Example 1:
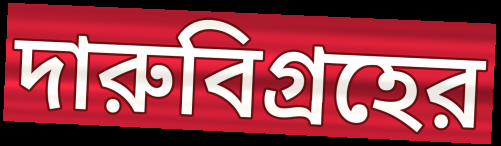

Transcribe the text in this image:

দারুবিগ্রহের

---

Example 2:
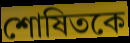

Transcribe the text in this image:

শোষিতকে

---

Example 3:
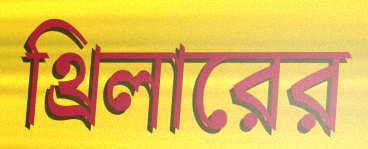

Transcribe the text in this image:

থ্রিলারের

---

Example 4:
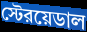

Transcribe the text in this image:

স্টেরয়েডাল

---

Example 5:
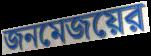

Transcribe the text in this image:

জনমেজয়ের